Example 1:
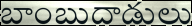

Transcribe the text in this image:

బాంబుదాడులు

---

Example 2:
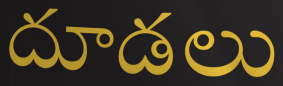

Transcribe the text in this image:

దూడలు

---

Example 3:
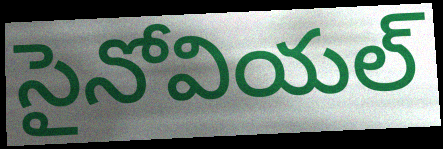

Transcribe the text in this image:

సైనోవియల్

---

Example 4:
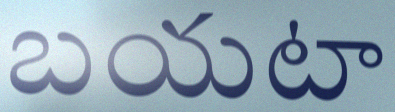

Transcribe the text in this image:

బయటా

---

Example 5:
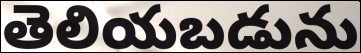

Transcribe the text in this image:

తెలియబడును